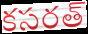
కసరత్